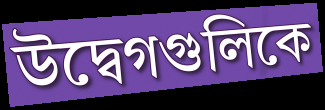
উদ্বেগগুলিকে